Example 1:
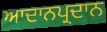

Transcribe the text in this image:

ਆਦਾਨਪ੍ਰਦਾਨ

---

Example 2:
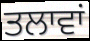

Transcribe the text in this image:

ਤਲਾਵਾਂ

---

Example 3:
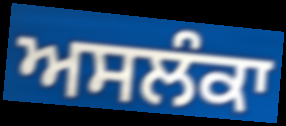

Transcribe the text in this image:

ਅਸਲੰਕਾ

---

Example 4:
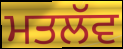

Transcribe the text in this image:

ਮਤਲੱਵ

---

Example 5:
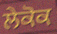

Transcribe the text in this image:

ਲੇਕੋਕ